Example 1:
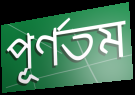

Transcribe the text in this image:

পূর্ণতম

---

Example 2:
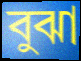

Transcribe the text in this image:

বুঝা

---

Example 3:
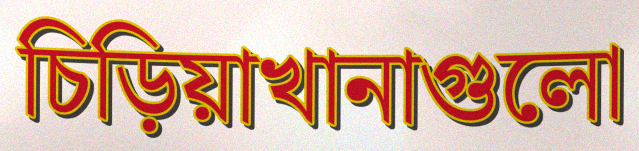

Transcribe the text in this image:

চিড়িয়াখানাগুলো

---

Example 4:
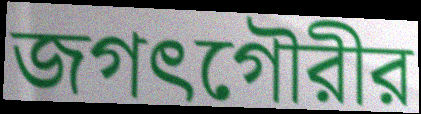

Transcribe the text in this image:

জগৎগৌরীর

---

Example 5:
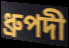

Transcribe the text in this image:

ধ্রুপদী